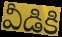
వీడికి